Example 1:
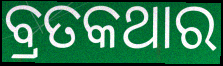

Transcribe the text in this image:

ବ୍ରତକଥାର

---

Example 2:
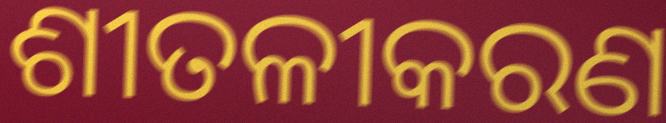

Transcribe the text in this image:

ଶୀତଳୀକରଣ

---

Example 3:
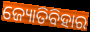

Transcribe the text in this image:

ଜ୍ୟୋତିବିହାର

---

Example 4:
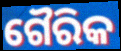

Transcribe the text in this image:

ଗୈରିକ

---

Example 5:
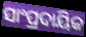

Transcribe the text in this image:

ସାଂପ୍ରଦାୟିକ